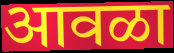
आवळा